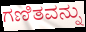
ಗಣಿತವನ್ನು